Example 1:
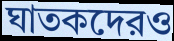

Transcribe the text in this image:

ঘাতকদেরও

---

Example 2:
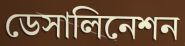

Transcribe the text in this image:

ডেসালিনেশন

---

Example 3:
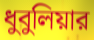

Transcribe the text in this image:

ধুবুলিয়ার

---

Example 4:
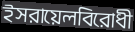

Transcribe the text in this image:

ইসরায়েলবিরোধী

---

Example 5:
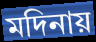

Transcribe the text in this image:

মদিনায়